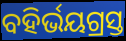
ବହିର୍ଭୟଗ୍ରସ୍ତ